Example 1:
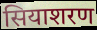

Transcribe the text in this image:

सियाशरण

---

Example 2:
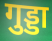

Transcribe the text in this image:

गुड्डा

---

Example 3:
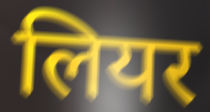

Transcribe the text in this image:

लियर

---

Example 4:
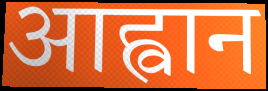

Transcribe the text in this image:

आह्वान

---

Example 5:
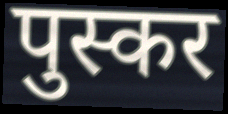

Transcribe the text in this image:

पुस्कर